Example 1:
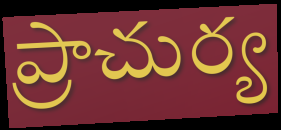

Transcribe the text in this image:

ప్రాచుర్య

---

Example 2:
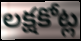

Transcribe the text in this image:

లక్షకోట్ల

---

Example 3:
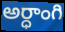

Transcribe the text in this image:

అర్ధాంగి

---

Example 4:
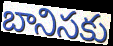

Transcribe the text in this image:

బానిసకు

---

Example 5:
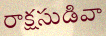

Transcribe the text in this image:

రాక్షసుడివా